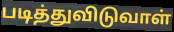
படித்துவிடுவாள்